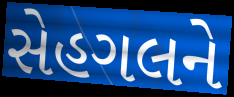
સેહગલને